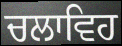
ਚਲਾਵਿਹ